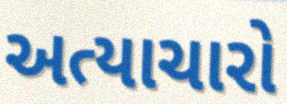
અત્યાચારો